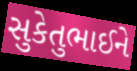
સુકેતુભાઈને